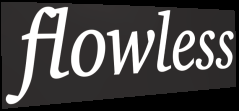
flowless